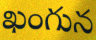
ఖంగున